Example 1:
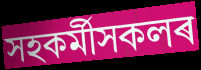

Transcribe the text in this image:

সহকৰ্মীসকলৰ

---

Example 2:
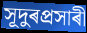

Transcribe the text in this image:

সূদুৰপ্ৰসাৰী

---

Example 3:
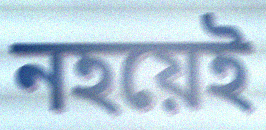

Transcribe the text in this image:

নহয়েই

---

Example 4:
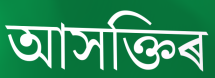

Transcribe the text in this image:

আসক্তিৰ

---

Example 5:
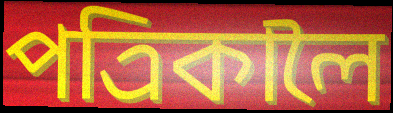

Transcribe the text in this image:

পত্ৰিকালৈ